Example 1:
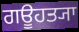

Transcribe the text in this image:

ਗਊਹਤ੍ਯਾ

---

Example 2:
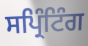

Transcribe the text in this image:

ਸਪ੍ਰਿੰਟਿੰਗ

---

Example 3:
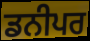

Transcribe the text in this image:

ਡਨੀਪਰ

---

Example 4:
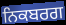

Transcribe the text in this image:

ਨਿਕਬਰਗ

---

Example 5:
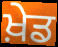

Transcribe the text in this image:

ਖ਼ੇਡ